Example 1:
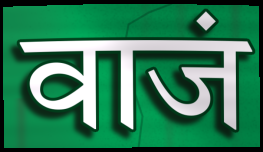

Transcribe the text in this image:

वाजं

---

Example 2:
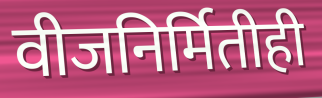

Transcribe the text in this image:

वीजनिर्मितीही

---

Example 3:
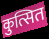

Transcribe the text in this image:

कुत्सित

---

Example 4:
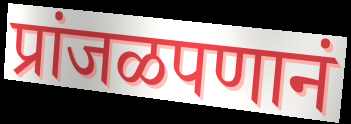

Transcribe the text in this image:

प्रांजळपणानं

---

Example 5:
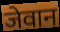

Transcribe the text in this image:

जेवान